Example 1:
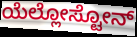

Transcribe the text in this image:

ಯೆಲ್ಲೋಸ್ಟೋನ್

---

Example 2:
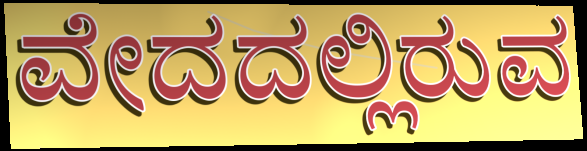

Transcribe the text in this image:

ವೇದದಲ್ಲಿರುವ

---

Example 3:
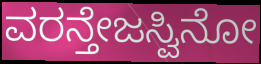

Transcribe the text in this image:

ವರನ್ತೇಜಸ್ವಿನೋ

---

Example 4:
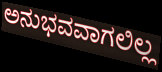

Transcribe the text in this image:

ಅನುಭವವಾಗಲಿಲ್ಲ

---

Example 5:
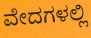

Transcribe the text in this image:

ವೇದಗಳಲ್ಲಿ